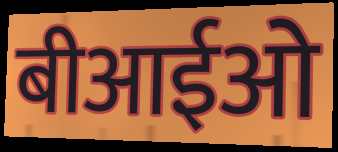
बीआईओ